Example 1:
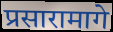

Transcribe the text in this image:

प्रसारामागे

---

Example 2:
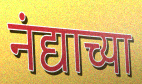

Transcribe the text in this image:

नंद्याच्या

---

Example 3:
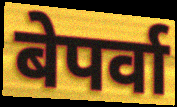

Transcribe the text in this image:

बेपर्वा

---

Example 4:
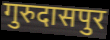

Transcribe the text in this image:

गुरुदासपुर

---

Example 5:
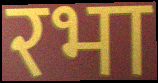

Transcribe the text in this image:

रभा